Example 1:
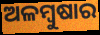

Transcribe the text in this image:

ଅଳମ୍ବୁଷାର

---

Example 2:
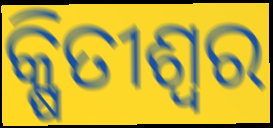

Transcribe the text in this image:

କ୍ଷିତୀଶ୍ୱର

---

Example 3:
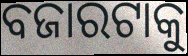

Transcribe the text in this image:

ବଜାରଟାକୁ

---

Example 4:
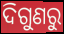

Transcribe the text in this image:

ଦିଗୁଣରୁ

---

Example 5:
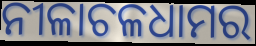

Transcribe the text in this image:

ନୀଳାଚଳଧାମର